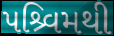
પશ્ર્વિમથી